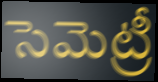
సెమెట్రీ